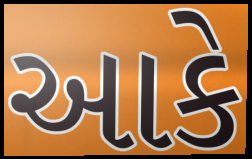
આકે